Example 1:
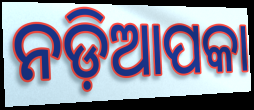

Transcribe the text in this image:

ନଡ଼ିଆପକା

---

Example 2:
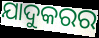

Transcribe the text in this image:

ଯାଦୁକରର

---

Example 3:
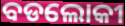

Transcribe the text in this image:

ବଡଲୋକୀ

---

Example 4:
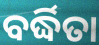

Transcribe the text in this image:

ବର୍ଦ୍ଧିତା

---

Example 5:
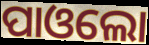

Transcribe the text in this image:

ପାଓଲୋ